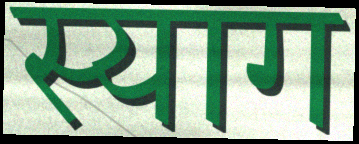
स्याग